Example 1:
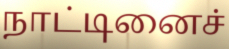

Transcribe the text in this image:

நாட்டினைச்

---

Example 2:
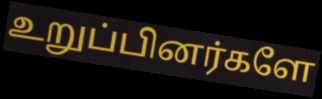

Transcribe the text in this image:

உறுப்பினர்களே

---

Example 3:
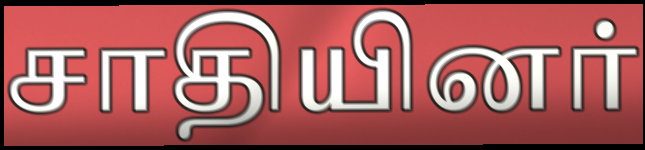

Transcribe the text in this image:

சாதியினர்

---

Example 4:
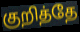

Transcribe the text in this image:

குறித்தே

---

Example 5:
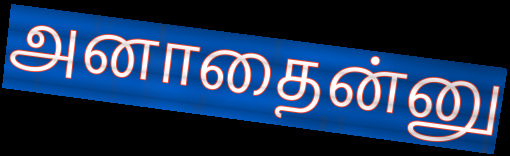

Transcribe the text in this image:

அனாதைன்னு